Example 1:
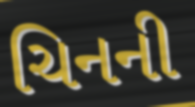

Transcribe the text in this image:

ચિનની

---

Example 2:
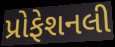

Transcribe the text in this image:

પ્રોફેશનલી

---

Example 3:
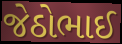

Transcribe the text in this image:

જેઠોભાઈ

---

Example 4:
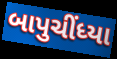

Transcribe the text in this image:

બાપુચીંધ્યા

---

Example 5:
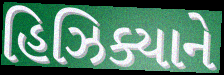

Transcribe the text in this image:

હિઝિક્યાને